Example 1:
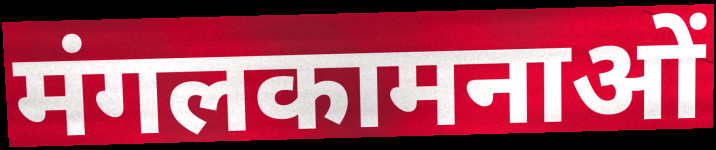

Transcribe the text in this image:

मंगलकामनाओं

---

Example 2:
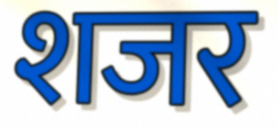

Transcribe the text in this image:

शजर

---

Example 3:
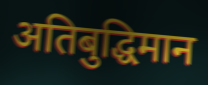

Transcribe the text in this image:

अतिबुद्धिमान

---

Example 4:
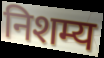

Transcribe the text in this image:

निशम्य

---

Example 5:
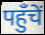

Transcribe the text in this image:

पहुँचें